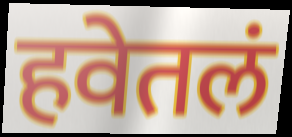
हवेतलं